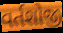
વર્તશોજી